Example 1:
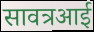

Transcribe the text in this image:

सावत्रआई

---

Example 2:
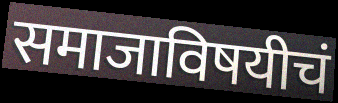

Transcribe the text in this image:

समाजाविषयीचं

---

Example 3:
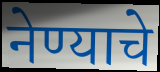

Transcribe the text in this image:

नेण्याचे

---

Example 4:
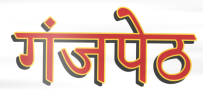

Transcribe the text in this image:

गंजपेठ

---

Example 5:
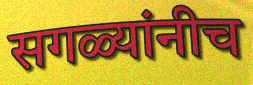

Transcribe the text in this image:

सगळ्यांनीच